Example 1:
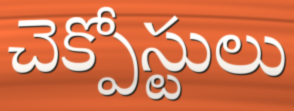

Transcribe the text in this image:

చెక్పోస్టులు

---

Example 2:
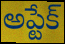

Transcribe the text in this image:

అప్టేక్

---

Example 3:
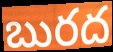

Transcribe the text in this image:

బురద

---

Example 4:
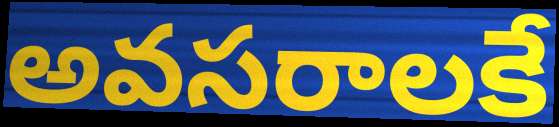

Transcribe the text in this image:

అవసరాలకే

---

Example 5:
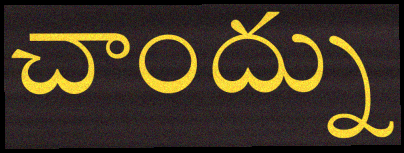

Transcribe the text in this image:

చాంద్ను